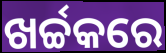
ଖର୍ଚ୍ଚକରେ